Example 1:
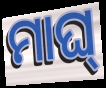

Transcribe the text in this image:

ମାଘ୍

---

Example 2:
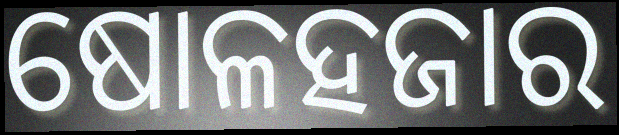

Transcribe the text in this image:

ଷୋଳହଜାର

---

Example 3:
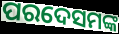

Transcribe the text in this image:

ପରଦେସମଙ୍କ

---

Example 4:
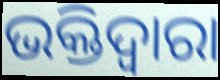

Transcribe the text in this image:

ଭକ୍ତିଦ୍ଵାରା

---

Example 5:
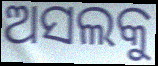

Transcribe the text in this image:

ଅସଲକୁ